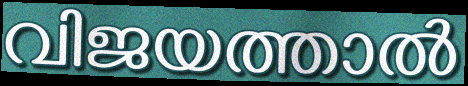
വിജയത്താൽ